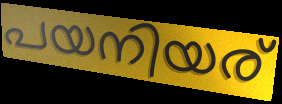
പയനിയര്